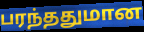
பரந்ததுமான